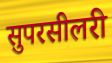
सुपरसीलरी